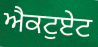
ਐਕਟੁਏਟ